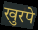
खुरपे